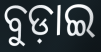
ବୁଡ଼ାଇ